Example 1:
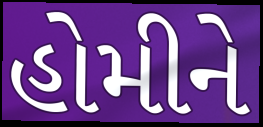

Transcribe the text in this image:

હોમીને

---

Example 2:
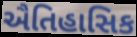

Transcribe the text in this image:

ઐતિહાસિક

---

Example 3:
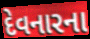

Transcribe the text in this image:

દેવનારના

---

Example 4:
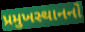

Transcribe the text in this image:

પ્રમુખસ્થાનનો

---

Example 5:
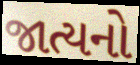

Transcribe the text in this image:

જાત્યનો